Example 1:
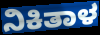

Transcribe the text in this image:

ನಿಕಿತಾಳ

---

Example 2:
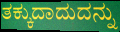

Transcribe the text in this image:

ತಕ್ಕುದಾದುದನ್ನು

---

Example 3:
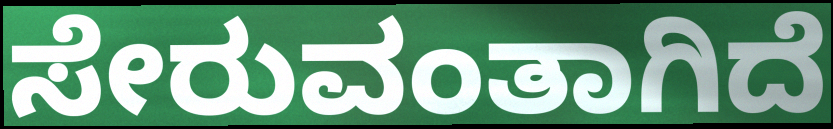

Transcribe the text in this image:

ಸೇರುವಂತಾಗಿದೆ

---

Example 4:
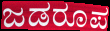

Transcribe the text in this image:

ಜಡರೂಪ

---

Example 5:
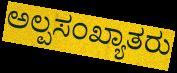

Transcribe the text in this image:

ಅಲ್ಪಸಂಖ್ಯಾತರು